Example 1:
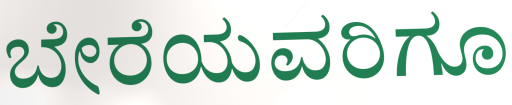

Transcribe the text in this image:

ಬೇರೆಯವರಿಗೂ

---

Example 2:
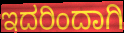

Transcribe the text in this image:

ಇದರಿಂದಾಗಿ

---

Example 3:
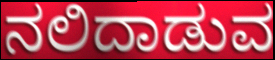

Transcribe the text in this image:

ನಲಿದಾಡುವ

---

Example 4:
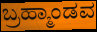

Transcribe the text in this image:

ಬ್ರಹ್ಮಾಂಡವ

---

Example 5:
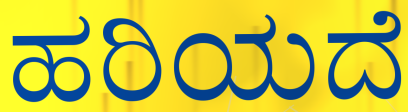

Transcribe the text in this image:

ಹರಿಯದೆ